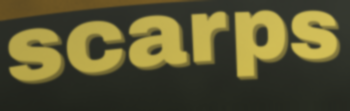
scarps